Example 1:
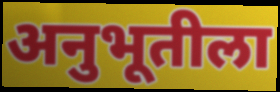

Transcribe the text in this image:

अनुभूतीला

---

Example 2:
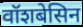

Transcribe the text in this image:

वॉशबेसिन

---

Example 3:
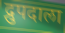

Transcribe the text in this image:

द्रुपदाला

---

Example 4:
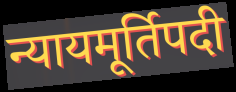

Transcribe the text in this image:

न्यायमूर्तिपदी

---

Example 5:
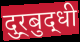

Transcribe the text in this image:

दुर्बुद्धी